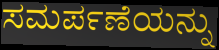
ಸಮರ್ಪಣೆಯನ್ನು